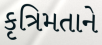
કૃત્રિમતાને